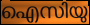
ഐസിയു